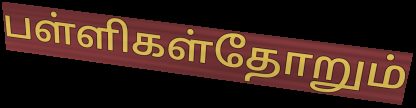
பள்ளிகள்தோறும்